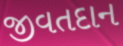
જીવતદાન